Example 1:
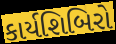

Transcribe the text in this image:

કાર્યશિબિરો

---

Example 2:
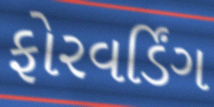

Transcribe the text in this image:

ફોરવર્ડિંગ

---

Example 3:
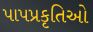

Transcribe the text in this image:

પાપપ્રકૃતિઓ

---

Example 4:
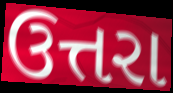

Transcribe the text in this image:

ઉત્તરા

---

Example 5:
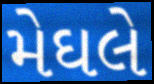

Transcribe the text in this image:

મેઘલે